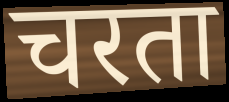
चरता